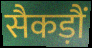
सैकड़ौं